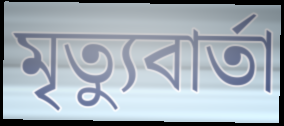
মৃত্যুবার্তা